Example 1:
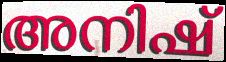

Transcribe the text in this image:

അനിഷ്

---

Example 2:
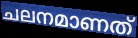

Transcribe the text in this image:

ചലനമാണത്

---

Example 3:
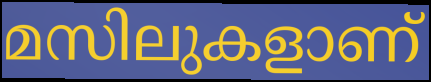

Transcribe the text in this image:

മസിലുകളാണ്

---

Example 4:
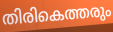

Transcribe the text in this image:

തിരികെത്തരും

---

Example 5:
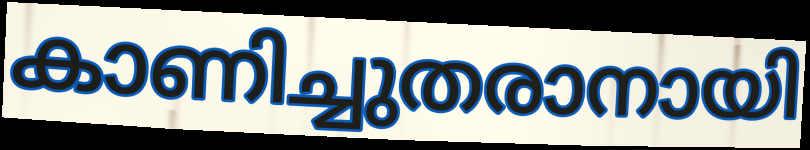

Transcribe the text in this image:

കാണിച്ചുതരാനായി